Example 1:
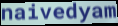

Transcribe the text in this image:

naivedyam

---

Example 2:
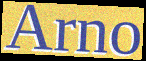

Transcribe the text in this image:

Arno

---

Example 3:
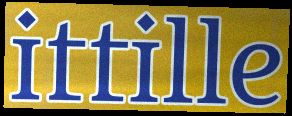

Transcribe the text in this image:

ittille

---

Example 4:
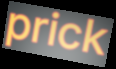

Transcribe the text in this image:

prick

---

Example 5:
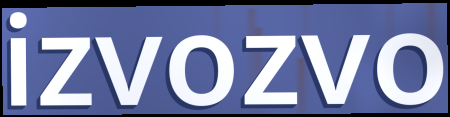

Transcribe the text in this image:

izvozvo